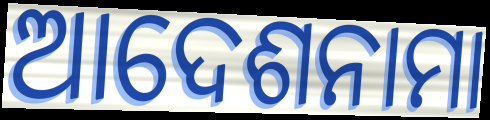
ଆଦେଶନାମା